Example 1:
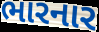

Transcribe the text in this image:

ભારનાર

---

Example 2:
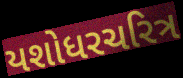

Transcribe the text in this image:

યશોધરચરિત્ર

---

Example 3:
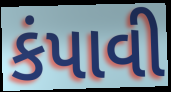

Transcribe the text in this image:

કંપાવી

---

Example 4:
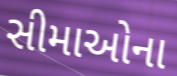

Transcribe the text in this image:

સીમાઓના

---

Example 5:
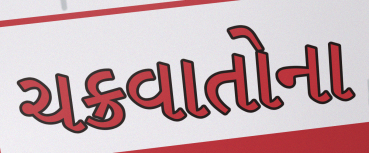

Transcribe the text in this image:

ચક્રવાતોના